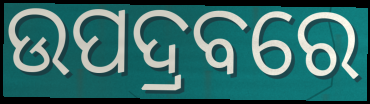
ଉପଦ୍ରବରେ